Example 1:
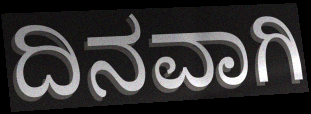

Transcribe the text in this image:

ದಿನವಾಗಿ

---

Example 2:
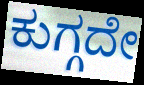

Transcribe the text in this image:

ಕುಗ್ಗದೇ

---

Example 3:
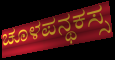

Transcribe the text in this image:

ಚೂಳಪನ್ಥಕಸ್ಸ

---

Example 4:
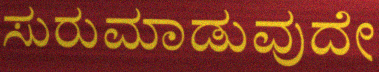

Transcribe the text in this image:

ಸುರುಮಾಡುವುದೇ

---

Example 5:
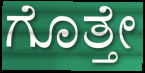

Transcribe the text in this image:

ಗೊತ್ತೇ